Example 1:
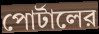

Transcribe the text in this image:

পোর্টালের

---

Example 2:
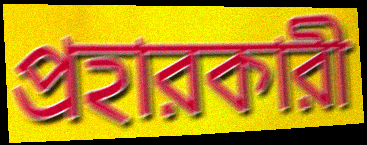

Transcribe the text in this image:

প্রহারকারী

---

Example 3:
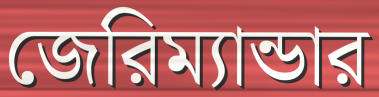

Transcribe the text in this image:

জেরিম্যান্ডার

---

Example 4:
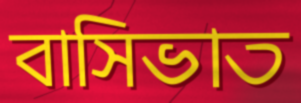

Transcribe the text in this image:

বাসিভাত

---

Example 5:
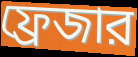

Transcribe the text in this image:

ফ্রেজার